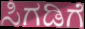
ಸಿಗಡಿಗೆ